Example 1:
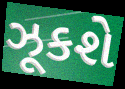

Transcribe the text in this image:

ઝૂકશે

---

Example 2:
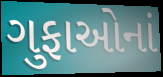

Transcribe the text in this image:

ગુફાઓનાં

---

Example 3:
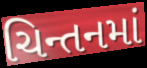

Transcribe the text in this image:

ચિન્તનમાં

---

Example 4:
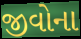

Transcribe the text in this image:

જીવોના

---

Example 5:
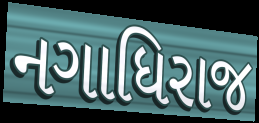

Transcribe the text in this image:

નગાધિરાજ